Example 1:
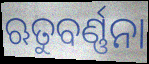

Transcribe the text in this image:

ଋତୁବର୍ଣ୍ଣନା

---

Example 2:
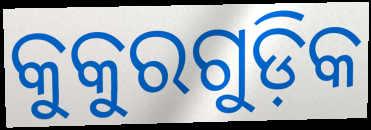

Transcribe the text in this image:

କୁକୁରଗୁଡ଼ିକ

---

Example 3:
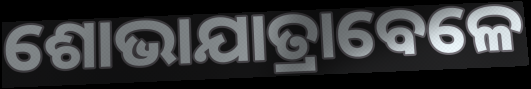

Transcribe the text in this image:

ଶୋଭାଯାତ୍ରାବେଳେ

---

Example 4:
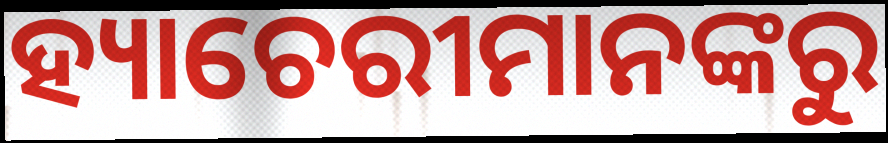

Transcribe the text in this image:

ହ୍ୟାଚେରୀମାନଙ୍କରୁ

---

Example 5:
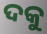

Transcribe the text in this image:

ଦକୁ